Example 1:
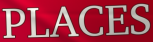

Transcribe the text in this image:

PLACES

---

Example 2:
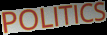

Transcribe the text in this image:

POLITICS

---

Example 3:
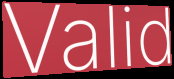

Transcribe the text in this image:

Valid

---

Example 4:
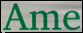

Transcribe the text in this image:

Ame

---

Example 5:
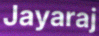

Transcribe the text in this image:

Jayaraj